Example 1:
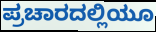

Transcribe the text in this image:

ಪ್ರಚಾರದಲ್ಲಿಯೂ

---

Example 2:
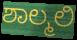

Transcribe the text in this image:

ಶಾಲ್ಮಲಿ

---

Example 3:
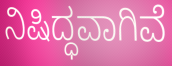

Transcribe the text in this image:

ನಿಷಿದ್ಧವಾಗಿವೆ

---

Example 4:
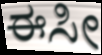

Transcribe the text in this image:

ಈಸೀ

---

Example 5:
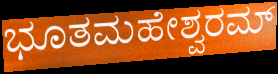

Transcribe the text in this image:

ಭೂತಮಹೇಶ್ವರಮ್